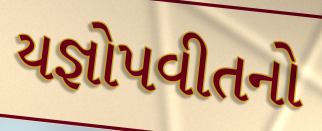
યજ્ઞોપવીતનો